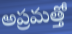
అప్రమత్తో